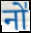
नो॑